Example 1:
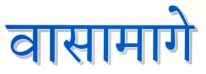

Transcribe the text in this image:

वासामागे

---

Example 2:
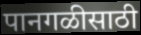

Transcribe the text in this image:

पानगळीसाठी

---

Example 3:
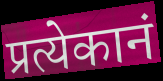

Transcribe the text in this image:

प्रत्येकानं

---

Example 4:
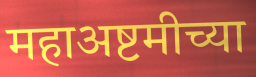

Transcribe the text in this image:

महाअष्टमीच्या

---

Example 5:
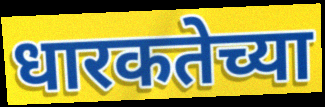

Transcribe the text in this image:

धारकतेच्या